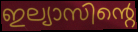
ഇല്യാസിന്റെ